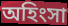
অহিংসা